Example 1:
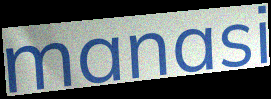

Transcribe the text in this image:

manasi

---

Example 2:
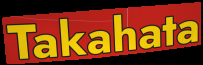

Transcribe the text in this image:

Takahata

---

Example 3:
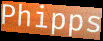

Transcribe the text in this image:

Phipps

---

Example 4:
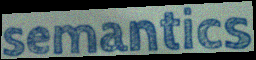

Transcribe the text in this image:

semantics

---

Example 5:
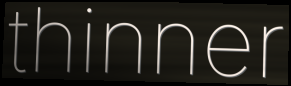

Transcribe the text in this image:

thinner